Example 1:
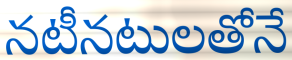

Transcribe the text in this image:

నటీనటులతోనే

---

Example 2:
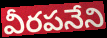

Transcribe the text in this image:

వీరపనేని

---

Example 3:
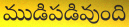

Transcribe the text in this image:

ముడిపడివుంది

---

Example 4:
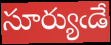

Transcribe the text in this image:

సూర్యుఁడే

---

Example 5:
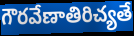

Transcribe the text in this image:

గౌరవేణాతిరిచ్యతే